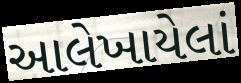
આલેખાયેલાં